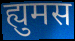
ह्युमस